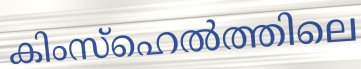
കിംസ്ഹെൽത്തിലെ